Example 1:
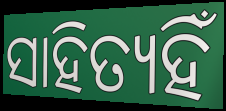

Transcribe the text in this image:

ସାହିତ୍ୟହିଁ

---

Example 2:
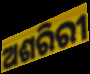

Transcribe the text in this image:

ଅଶରିରୀ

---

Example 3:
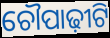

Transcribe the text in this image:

ଚୌପାଢ଼ୀଟି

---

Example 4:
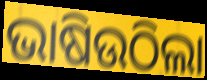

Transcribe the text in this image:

ଭାଷିଉଠିଲା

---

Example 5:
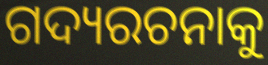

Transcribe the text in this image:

ଗଦ୍ୟରଚନାକୁ